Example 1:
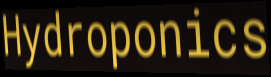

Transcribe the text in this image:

Hydroponics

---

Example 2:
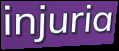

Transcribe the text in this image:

injuria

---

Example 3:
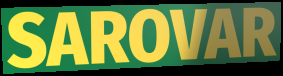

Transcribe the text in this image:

SAROVAR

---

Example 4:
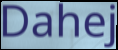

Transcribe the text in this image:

Dahej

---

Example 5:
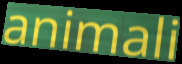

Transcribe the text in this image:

animali